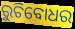
ରୁଚିବୋଧର